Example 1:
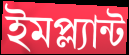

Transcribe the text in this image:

ইমপ্ল্যান্ট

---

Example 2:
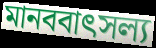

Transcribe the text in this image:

মানববাৎসল্য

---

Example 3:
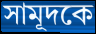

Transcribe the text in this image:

সামূদকে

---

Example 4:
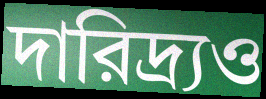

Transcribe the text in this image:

দারিদ্র্যও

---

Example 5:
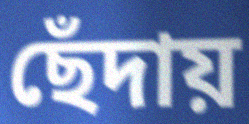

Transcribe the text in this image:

ছেঁদায়